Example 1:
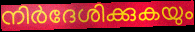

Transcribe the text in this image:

നിർദേശിക്കുകയും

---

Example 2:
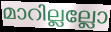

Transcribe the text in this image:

മാറില്ലല്ലോ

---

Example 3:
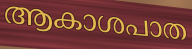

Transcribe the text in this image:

ആകാശപാത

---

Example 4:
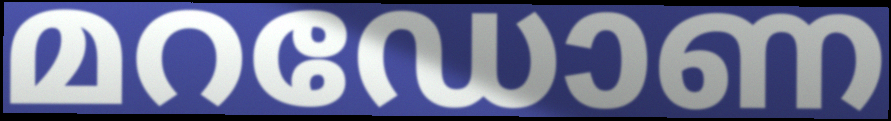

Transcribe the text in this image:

മറഡോണ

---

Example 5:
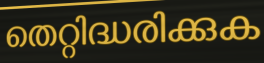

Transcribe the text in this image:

തെറ്റിദ്ധരിക്കുക